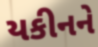
યકીનને